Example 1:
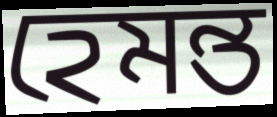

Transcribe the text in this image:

হেমন্ত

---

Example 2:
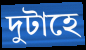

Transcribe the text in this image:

দুটাহে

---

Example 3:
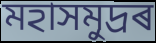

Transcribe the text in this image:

মহাসমুদ্ৰৰ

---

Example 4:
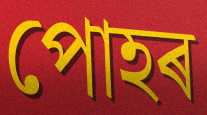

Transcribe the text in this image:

পোহৰ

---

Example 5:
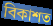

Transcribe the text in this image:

বিকাশত